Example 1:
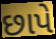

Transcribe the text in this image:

છાપે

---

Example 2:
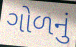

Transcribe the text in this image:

ગોળનું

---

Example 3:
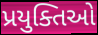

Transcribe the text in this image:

પ્રયુક્તિઓ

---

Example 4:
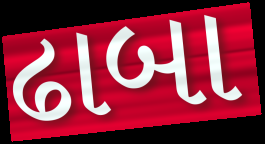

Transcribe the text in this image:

ઢાબા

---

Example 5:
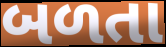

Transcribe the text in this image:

બળતા